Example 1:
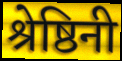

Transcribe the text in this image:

श्रेष्ठिनी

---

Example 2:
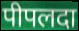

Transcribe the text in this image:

पीपलदा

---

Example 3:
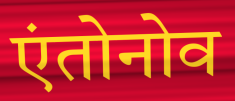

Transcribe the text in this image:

एंतोनोव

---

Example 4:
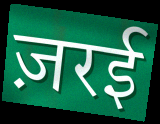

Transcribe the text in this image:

ज़रई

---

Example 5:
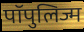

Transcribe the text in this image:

पॉपुलिज्म